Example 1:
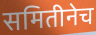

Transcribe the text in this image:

समितीनेच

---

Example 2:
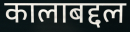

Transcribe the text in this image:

कालाबद्दल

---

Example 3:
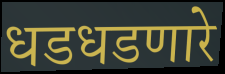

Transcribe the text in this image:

धडधडणारे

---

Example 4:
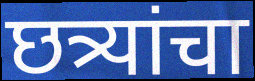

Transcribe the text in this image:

छत्र्यांचा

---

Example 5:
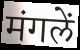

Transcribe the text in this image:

मंगलें